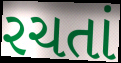
રચતાં